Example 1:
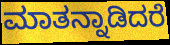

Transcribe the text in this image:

ಮಾತನ್ನಾಡಿದರೆ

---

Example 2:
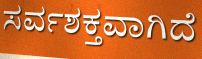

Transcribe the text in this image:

ಸರ್ವಶಕ್ತವಾಗಿದೆ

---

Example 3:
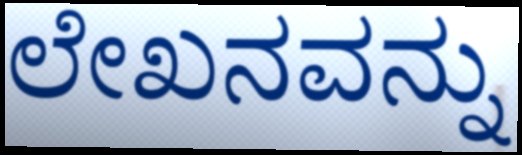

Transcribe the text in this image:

ಲೇಖನವನ್ನು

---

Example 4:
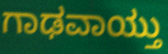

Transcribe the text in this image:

ಗಾಢವಾಯ್ತು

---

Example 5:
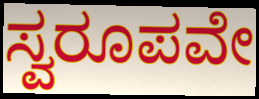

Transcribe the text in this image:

ಸ್ವರೂಪವೇ